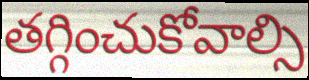
తగ్గించుకోవాల్సి